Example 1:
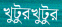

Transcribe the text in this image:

খুটুরখুটুর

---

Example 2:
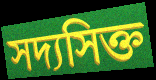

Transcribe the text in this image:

সদ্যসিক্ত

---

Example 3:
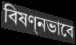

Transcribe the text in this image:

বিষণ্নভাবে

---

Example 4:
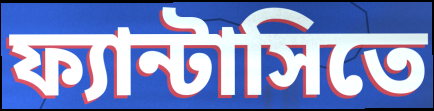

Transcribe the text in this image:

ফ্যান্টাসিতে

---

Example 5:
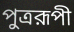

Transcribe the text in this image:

পুত্ররূপী